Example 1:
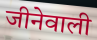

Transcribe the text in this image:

जीनेवाली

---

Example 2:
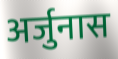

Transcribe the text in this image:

अर्जुनास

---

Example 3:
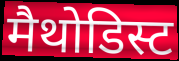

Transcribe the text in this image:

मैथोडिस्ट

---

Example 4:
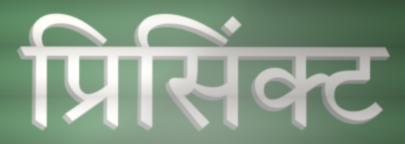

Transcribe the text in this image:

प्रिसिंक्ट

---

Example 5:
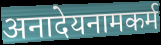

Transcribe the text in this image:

अनादेयनामकर्म